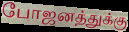
போஜனத்துக்கு